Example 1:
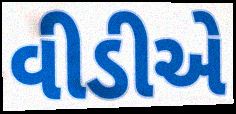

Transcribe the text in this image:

વીડીએ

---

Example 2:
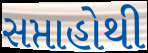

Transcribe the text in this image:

સપ્તાહોથી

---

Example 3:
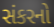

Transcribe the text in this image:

સંકરનો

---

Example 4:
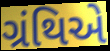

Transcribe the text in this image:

ગ્રંથિએ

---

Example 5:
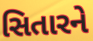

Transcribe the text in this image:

સિતારને